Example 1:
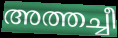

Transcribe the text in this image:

അത്തച്ചീ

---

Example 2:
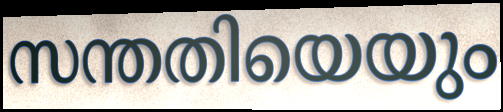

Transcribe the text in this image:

സന്തതിയെയും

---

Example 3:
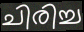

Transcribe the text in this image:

ചിരിച്ച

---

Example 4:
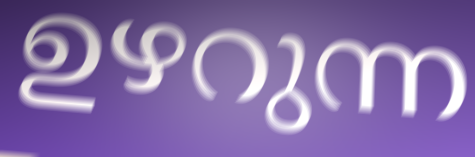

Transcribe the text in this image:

ഉഴറുന്ന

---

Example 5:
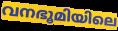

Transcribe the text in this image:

വനഭൂമിയിലെ